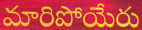
మారిపోయేరు